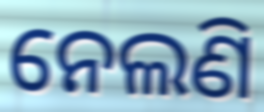
ନେଲଣି